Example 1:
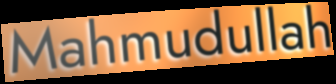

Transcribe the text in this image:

Mahmudullah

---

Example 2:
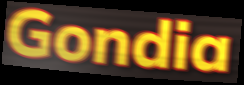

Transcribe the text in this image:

Gondia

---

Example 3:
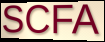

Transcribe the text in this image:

SCFA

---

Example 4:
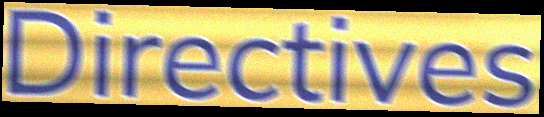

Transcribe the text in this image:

Directives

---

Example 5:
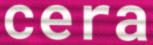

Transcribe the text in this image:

cera